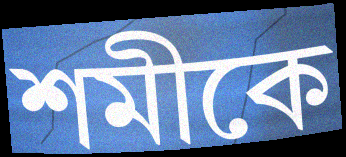
শমীকে